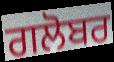
ਗਲੋਬਰ